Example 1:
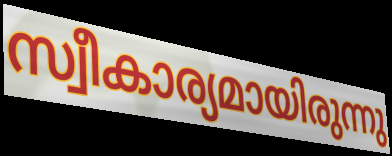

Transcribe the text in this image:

സ്വീകാര്യമായിരുന്നു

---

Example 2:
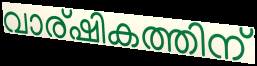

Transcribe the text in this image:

വാര്ഷികത്തിന്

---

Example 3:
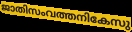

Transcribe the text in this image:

ജാതിസംവത്തനികേസു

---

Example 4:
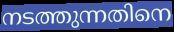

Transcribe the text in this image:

നടത്തുന്നതിനെ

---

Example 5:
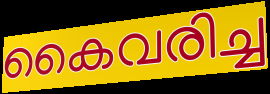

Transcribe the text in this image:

കൈവരിച്ച